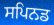
ਸਪਿਨਡ